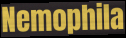
Nemophila